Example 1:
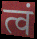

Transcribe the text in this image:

त्वं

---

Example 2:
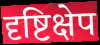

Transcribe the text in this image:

दृष्टिक्षेप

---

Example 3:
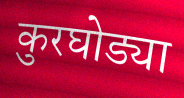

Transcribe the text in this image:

कुरघोड्या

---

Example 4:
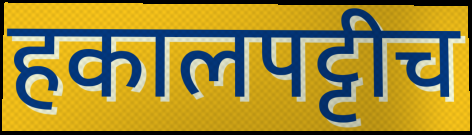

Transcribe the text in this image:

हकालपट्टीच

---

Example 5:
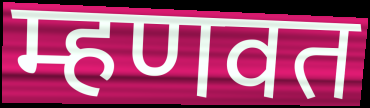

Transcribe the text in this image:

म्हणवत